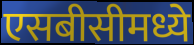
एसबीसीमध्ये